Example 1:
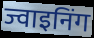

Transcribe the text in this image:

ज्वाइनिंग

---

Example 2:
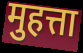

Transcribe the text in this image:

मुहत्ता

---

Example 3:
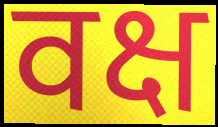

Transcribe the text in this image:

वक्ष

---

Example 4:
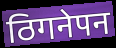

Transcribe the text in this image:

ठिगनेपन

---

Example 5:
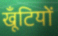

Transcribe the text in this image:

खूँटियों